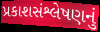
પ્રકાશસંશ્લેષણનું